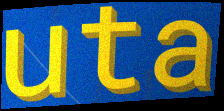
uta